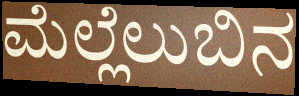
ಮೆಲ್ಲೆಲುಬಿನ